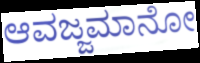
ಆವಜ್ಜಮಾನೋ